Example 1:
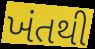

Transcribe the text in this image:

ખંતથી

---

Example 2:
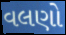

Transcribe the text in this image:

વલણો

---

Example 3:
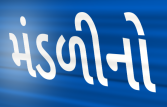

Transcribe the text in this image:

મંડળીનો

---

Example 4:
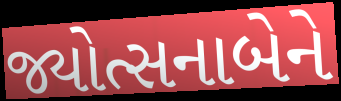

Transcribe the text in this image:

જ્યોત્સનાબેને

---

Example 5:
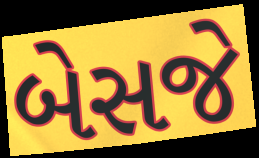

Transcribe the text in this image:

બેસજે